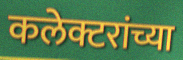
कलेक्टरांच्या